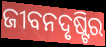
ଜୀବନଦୃଷ୍ଟିର